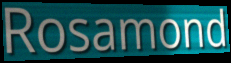
Rosamond